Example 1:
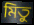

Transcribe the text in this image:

মিতু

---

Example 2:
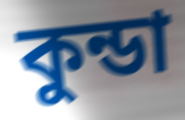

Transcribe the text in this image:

কুন্ডা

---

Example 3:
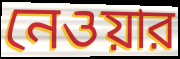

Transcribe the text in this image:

নেওয়ার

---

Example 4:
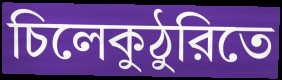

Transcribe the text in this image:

চিলেকুঠুরিতে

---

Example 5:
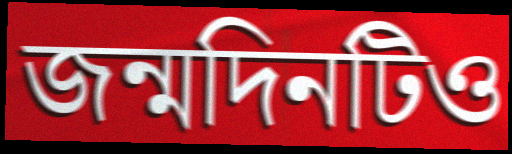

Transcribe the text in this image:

জন্মদিনটিও